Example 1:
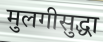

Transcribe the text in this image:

मुलगीसुद्धा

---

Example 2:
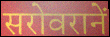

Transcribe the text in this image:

सरोवरानें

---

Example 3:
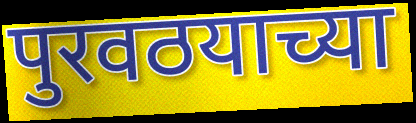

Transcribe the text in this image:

पुरवठयाच्या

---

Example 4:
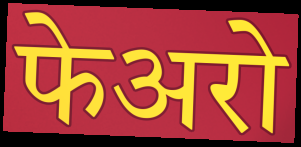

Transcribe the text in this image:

फेअरो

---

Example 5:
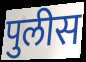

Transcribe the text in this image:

पुलीस